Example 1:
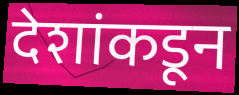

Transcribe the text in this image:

देशांकडून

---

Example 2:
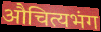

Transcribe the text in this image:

औचित्यभंग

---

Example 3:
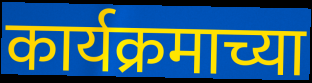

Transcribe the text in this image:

कार्यक्रमाच्या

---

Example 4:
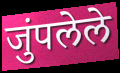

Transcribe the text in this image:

जुंपलेले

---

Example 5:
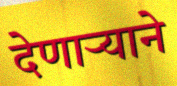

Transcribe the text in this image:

देणार्‍याने